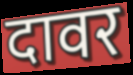
दावर